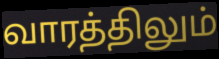
வாரத்திலும்